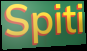
Spiti